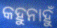
କହୁନାହୁଁ